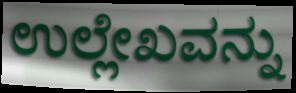
ಉಲ್ಲೇಖವನ್ನು